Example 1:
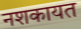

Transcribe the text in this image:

नशकायत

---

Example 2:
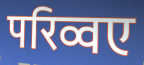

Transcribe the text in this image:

परिव्वए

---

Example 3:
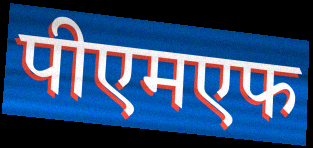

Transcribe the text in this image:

पीएमएफ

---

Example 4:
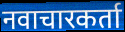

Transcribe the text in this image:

नवाचारकर्ता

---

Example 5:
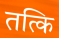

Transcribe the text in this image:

तत्कि